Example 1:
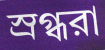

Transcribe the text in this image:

স্রগ্ধরা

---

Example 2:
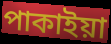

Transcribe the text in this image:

পাকাইয়া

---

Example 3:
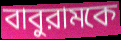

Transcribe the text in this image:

বাবুরামকে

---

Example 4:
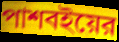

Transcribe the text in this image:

পাশবইয়ের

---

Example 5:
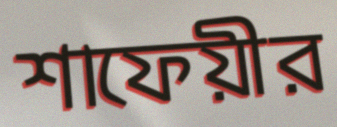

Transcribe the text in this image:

শাফেয়ীর